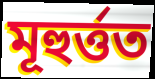
মূহুৰ্ত্তত